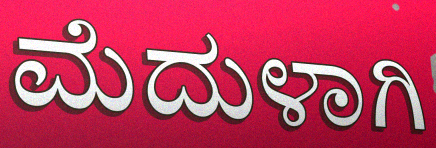
ಮೆದುಳಾಗಿ